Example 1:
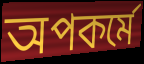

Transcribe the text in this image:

অপকর্মে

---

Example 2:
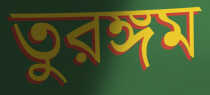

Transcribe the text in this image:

তুরঙ্গম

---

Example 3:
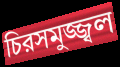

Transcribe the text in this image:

চিরসমুজ্জ্বল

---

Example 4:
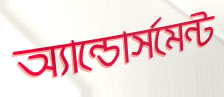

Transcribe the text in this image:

অ্যান্ডোর্সমেন্ট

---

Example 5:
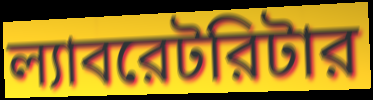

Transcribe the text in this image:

ল্যাবরেটরিটার